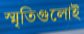
স্মৃতিগুলোই